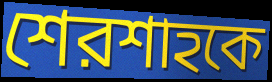
শেরশাহকে